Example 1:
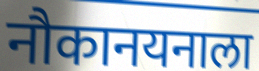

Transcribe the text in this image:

नौकानयनाला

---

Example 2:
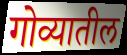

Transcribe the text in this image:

गोव्यातील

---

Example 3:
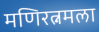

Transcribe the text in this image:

मणिरत्नमला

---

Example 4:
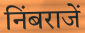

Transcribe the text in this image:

निंबराजें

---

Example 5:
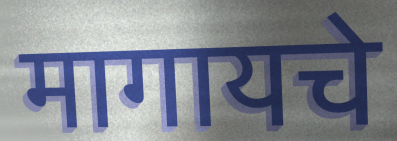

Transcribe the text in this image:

मागायचे